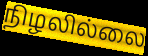
நிழலில்லை